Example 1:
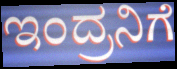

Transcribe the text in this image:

ಇಂದ್ರನಿಗೆ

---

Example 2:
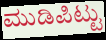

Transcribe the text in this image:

ಮುಡಿಪಿಟ್ಟು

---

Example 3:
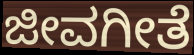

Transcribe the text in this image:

ಜೀವಗೀತೆ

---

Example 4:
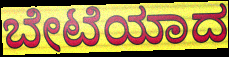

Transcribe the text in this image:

ಬೇಟೆಯಾದ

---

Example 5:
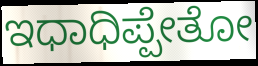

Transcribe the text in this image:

ಇಧಾಧಿಪ್ಪೇತೋ